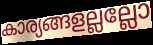
കാര്യങ്ങളല്ലല്ലോ